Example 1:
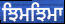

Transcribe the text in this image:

ਝਿਮਝਿਮਾ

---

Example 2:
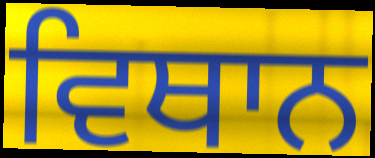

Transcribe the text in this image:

ਵਿਥਾਨ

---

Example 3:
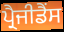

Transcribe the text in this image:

ਪ੍ਰੈਜੀਡੈਂਸ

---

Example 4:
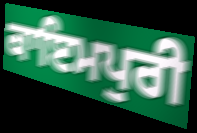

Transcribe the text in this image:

ਕਾਇਮਪੁਰੀ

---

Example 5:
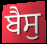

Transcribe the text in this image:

ਬੈਸੁ